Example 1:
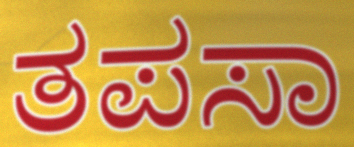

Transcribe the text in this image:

ತಪಸಾ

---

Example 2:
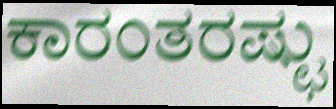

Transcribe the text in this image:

ಕಾರಂತರಷ್ಟು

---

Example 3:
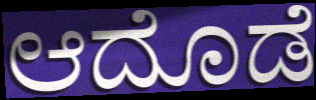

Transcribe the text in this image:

ಆದೊಡೆ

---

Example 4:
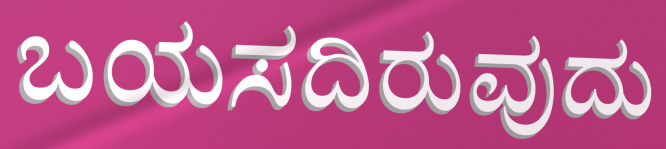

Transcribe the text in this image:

ಬಯಸದಿರುವುದು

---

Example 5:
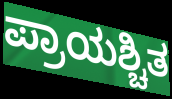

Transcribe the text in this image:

ಪ್ರಾಯಶ್ಚಿತ